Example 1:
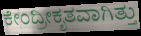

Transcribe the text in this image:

ಕೇಂದ್ರೀಕೃತವಾಗಿತ್ತು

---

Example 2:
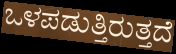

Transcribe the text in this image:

ಒಳಪಡುತ್ತಿರುತ್ತದೆ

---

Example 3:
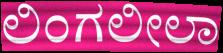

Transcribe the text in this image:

ಲಿಂಗಲೀಲಾ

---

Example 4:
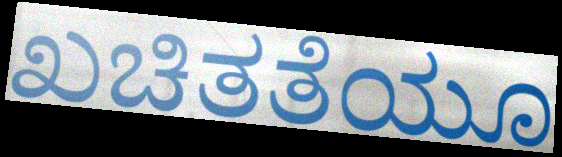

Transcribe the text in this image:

ಖಚಿತತೆಯೂ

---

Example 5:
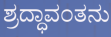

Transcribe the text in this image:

ಶ್ರದ್ಧಾವಂತನು